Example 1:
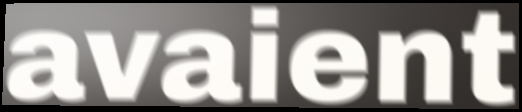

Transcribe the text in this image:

avaient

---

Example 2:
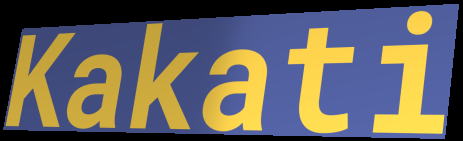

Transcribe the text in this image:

Kakati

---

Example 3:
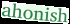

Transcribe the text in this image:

ahonish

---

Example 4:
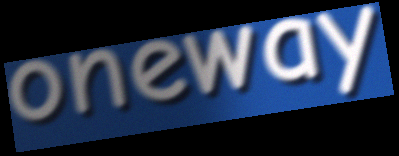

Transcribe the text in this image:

oneway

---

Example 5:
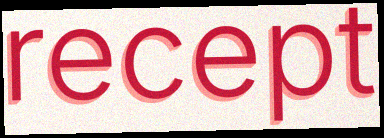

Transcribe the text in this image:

recept